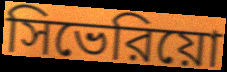
সিভেরিয়ো